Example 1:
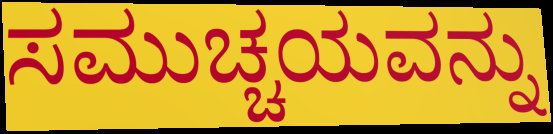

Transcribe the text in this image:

ಸಮುಚ್ಚಯವನ್ನು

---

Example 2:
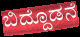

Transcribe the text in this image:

ಬಿದ್ದೊಡನೆ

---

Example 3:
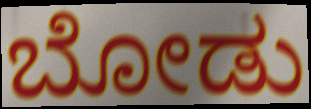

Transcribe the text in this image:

ಬೋಡು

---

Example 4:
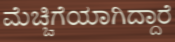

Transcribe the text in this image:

ಮೆಚ್ಚಿಗೆಯಾಗಿದ್ದಾರೆ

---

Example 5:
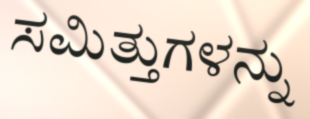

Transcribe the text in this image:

ಸಮಿತ್ತುಗಳನ್ನು